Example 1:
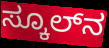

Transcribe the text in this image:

ಸ್ಕೂಲ್‌ನ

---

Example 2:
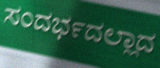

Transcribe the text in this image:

ಸಂದರ್ಭದಲ್ಲಾದ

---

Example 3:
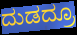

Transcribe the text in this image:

ದುಡದ್ರೂ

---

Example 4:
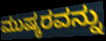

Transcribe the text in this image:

ಮುಷ್ಕರವನ್ನು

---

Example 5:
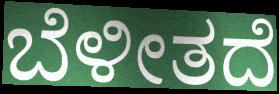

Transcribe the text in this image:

ಬೆಳೀತದೆ